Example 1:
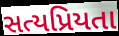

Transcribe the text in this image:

સત્યપ્રિયતા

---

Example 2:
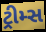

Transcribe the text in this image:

ટ્રીમ્સ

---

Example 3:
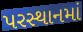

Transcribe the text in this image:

પરસ્થાનમાં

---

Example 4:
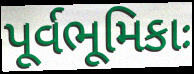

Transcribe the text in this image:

પૂર્વભૂમિકાઃ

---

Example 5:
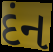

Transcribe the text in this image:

દંન